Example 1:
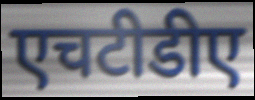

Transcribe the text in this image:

एचटीडीए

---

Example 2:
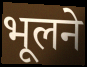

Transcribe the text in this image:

भूलने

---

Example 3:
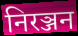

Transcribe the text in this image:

निरञ्जन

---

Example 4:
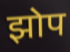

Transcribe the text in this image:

झोप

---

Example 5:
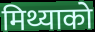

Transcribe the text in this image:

मिथ्याको